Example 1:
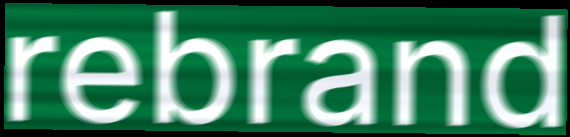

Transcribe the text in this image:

rebrand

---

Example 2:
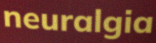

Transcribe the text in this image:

neuralgia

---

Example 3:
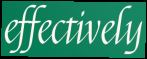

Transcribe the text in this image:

effectively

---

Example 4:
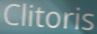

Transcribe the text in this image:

Clitoris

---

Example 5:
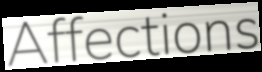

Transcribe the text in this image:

Affections